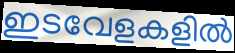
ഇടവേളകളിൽ